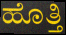
ಹೊತ್ತಿ